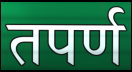
तपर्ण